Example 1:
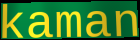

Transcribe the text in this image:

kaman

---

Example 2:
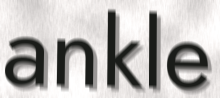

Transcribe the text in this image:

ankle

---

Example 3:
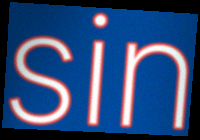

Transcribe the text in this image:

sin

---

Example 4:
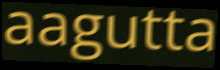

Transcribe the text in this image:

aagutta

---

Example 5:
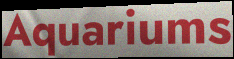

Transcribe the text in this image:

Aquariums